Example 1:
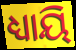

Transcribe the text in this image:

ଧ୍ୟାୟି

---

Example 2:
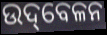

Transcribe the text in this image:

ଉଦ୍‌ବେଳନ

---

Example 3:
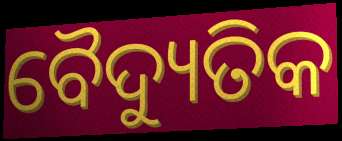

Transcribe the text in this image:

ବୈଦ୍ୟୁତିକ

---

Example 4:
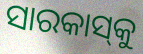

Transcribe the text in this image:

ସାରକାସ୍‌କୁ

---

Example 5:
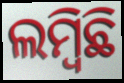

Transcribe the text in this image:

ଲମ୍ବିଛି